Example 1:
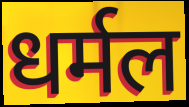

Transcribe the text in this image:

धर्मल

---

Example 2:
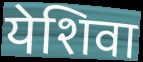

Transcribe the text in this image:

येशिवा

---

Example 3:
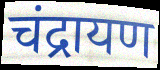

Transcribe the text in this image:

चंद्रायण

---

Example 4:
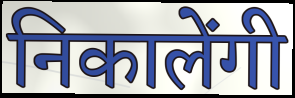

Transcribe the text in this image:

निकालेंगी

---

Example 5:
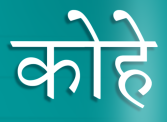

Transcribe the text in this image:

कोहे